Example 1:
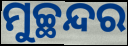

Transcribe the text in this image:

ମୁଚ୍ଛନ୍ଦର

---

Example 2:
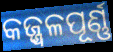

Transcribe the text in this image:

କଜ୍ଜ୍ୱଳପୂର୍ଣ୍ଣ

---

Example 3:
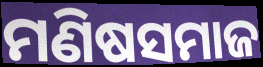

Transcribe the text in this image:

ମଣିଷସମାଜ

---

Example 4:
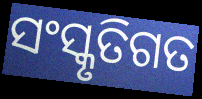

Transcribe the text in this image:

ସଂସ୍କୃତିଗତ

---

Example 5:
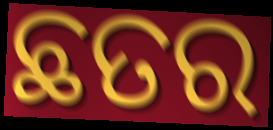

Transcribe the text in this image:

ଛତର